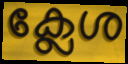
ക്ലേശ